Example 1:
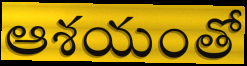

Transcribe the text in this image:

ఆశయంతో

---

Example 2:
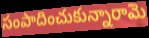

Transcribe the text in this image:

సంపాదించుకున్నారామె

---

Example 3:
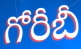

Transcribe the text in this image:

గోరీబీ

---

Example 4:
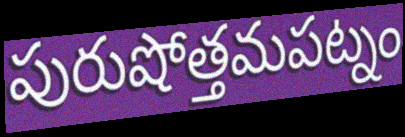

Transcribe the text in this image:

పురుషోత్తమపట్నం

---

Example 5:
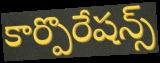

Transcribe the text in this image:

కార్పొరేషన్స్